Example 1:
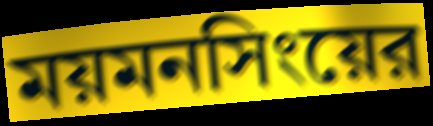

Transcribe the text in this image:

ময়মনসিংয়ের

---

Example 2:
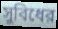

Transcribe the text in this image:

সুবিধের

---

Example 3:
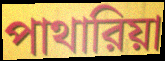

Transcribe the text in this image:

পাথারিয়া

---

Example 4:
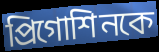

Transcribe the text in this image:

প্রিগোশিনকে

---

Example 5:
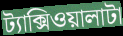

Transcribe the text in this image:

ট্যাক্সিওয়ালাটা